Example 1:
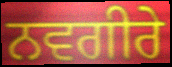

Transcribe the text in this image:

ਨਵਗੀਰੇ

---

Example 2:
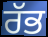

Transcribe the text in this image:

ਰੱਭ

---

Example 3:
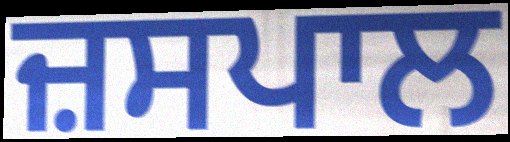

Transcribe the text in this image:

ਜ਼ਸਪਾਲ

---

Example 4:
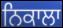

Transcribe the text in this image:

ਨਿਕਾਲਾ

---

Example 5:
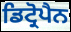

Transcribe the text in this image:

ਡਿਟ੍ਰੋਪੈਨ